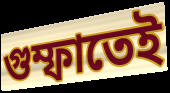
গুম্ফাতেই